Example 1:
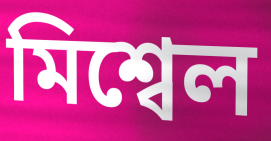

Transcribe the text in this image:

মিশ্বেল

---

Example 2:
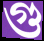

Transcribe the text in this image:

গু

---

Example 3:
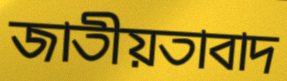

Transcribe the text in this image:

জাতীয়তাবাদ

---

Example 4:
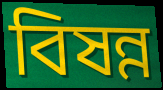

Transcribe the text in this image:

বিষন্ন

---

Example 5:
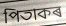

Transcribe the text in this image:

পিতাকৰ